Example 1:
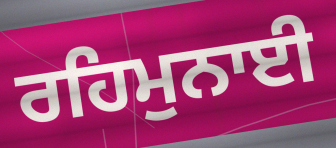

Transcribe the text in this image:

ਰਹਿਮੁਨਾਈ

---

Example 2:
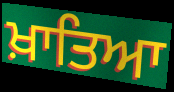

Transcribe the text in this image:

ਖ਼ਾਤਿਆ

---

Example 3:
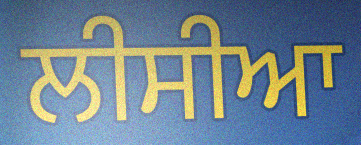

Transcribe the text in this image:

ਲੀਸੀਆ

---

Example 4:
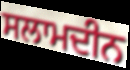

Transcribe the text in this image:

ਸਲਾਮਦੀਨ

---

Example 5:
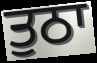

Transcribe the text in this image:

ਤੁਠਾ